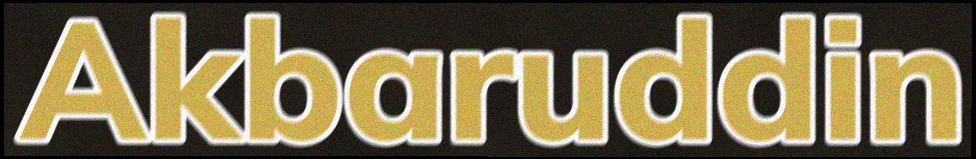
Akbaruddin